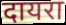
दायरा